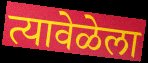
त्यावेळेला